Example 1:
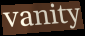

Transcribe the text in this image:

vanity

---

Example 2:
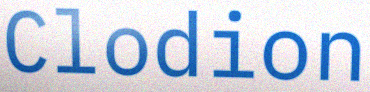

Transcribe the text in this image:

Clodion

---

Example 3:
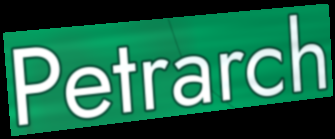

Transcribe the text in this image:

Petrarch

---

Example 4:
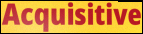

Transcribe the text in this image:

Acquisitive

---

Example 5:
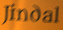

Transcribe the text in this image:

Jindal